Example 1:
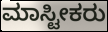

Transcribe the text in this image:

ಮಾಸ್ಟೀಕರು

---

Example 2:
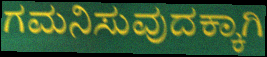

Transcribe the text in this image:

ಗಮನಿಸುವುದಕ್ಕಾಗಿ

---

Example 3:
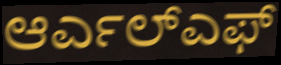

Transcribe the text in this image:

ಆರ್ಎಲ್ಎಫ್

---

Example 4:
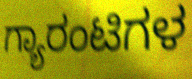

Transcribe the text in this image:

ಗ್ಯಾರಂಟಿಗಳ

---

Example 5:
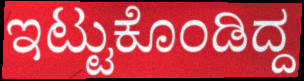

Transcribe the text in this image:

ಇಟ್ಟುಕೊಂಡಿದ್ದ